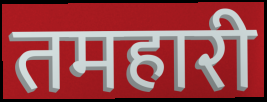
तमहारी